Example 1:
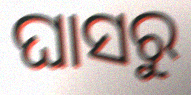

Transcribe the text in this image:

ଘାସରୁ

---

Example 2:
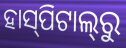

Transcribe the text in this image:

ହାସ୍‍ପିଟାଲ୍‍ରୁ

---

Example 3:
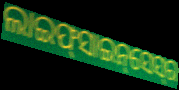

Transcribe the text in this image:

ଲାଇଫ୍‌ସାଇନ୍‌ସେସ୍‌ର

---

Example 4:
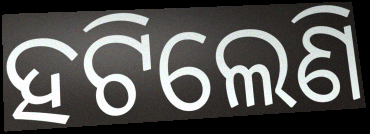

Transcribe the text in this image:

ହଟିଲେଣି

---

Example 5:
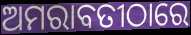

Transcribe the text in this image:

ଅମରାବତୀଠାରେ